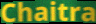
Chaitra